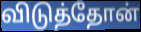
விடுத்தோன்